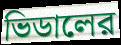
ভিডালের